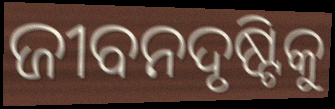
ଜୀବନଦୃଷ୍ଟିକୁ